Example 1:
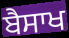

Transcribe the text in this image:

ਬੈਸਾਖ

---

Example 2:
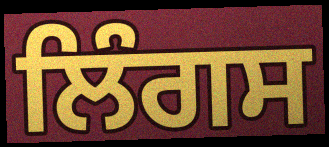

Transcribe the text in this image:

ਲਿੰਗਸ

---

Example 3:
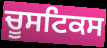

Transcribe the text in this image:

ਚੂਸਟਿਕਸ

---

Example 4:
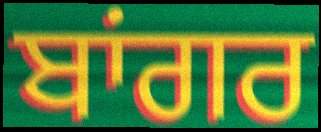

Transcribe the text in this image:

ਬਾਂਗਰ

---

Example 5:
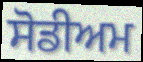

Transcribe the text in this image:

ਸੋਡੀਅਮ